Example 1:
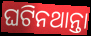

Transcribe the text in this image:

ଘଟିନଥାନ୍ତା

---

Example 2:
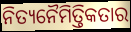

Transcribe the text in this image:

ନିତ୍ୟନୈମିତ୍ତିକତାର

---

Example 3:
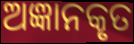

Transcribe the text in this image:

ଅଜ୍ଞାନକୃତ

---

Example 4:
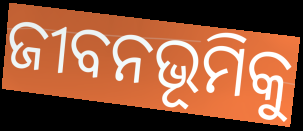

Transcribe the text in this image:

ଜୀବନଭୂମିକୁ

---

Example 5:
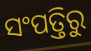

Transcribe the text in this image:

ସଂପତ୍ତିରୁ